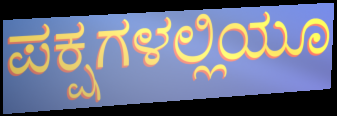
ಪಕ್ಷಗಳಲ್ಲಿಯೂ